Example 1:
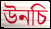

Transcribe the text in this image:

উনচি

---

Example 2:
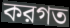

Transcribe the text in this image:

করগত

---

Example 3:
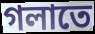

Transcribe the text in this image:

গলাতে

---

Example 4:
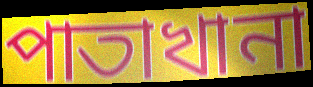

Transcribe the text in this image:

পাতাখানা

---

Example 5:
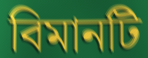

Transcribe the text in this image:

বিমানটি